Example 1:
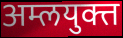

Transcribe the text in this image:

अम्लयुक्त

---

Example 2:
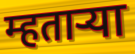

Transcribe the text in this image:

म्हताऱ्या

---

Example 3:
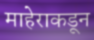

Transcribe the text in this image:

माहेराकडून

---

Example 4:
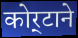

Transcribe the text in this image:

कोर्टाने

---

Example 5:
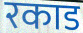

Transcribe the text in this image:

रकाड